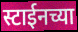
स्टाईनच्या